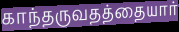
காந்தருவதத்தையார்